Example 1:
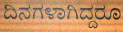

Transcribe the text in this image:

ದಿನಗಳಾಗಿದ್ದರೂ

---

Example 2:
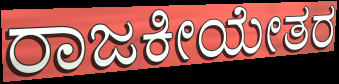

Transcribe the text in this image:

ರಾಜಕೀಯೇತರ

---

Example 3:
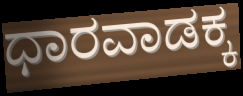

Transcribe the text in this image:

ಧಾರವಾಡಕ್ಕ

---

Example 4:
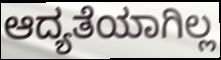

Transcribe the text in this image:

ಆದ್ಯತೆಯಾಗಿಲ್ಲ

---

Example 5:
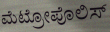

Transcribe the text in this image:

ಮೆಟ್ರೋಪೊಲಿಸ್